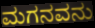
ಮಗನವನು